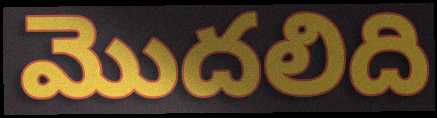
మొదలిది